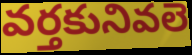
వర్తకునివలె